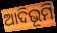
ଆଦିଭୂମି